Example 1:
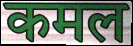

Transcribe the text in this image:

कमल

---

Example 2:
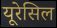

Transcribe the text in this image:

यूरेसिल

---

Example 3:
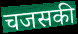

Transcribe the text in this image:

चजसकी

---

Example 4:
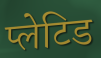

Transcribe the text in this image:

प्लेटिड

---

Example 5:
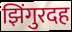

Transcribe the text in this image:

झिंगुरदह